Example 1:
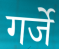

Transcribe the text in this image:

गर्जे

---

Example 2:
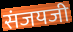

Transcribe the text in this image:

संजयजी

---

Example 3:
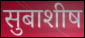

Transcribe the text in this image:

सुबाशीष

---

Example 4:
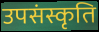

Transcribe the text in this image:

उपसंस्कृति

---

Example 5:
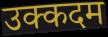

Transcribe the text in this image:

उक्कदम